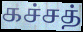
கச்சத்